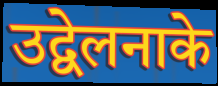
उद्वेलनाके